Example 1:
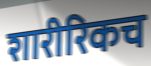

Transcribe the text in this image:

शारीरिकच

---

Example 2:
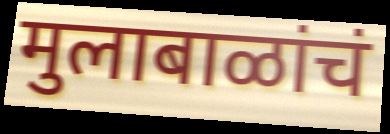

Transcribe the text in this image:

मुलाबाळांचं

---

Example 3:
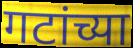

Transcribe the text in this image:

गटांच्या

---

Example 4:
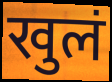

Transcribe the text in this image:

खुलं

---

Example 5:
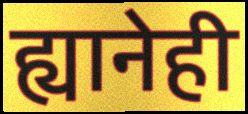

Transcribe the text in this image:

ह्यानेही